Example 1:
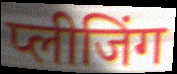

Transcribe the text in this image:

प्लीजिंग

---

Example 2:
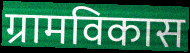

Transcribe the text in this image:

ग्रामविकास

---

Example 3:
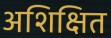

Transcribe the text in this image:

अशिक्षित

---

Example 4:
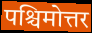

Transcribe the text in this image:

पश्चिमोत्तर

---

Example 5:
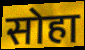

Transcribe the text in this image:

सोहा